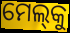
ମେଲ୍‌କୁ